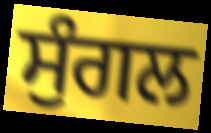
ਸੁੰਗਲ